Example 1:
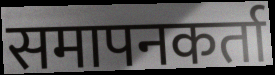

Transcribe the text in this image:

समापनकर्ता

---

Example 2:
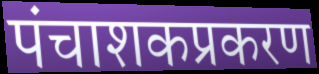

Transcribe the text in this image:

पंचाशकप्रकरण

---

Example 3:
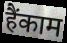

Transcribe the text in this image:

हैंकाम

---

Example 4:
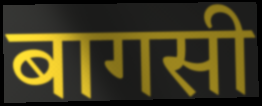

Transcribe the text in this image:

बागसी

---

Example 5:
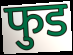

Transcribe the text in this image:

फुड